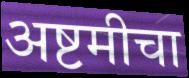
अष्टमीचा